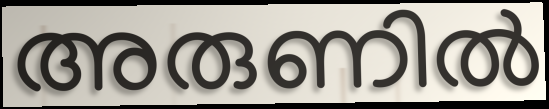
അരുണിൽ